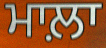
ਮਾਲ਼ਾ